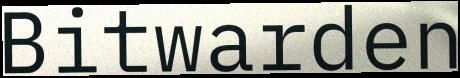
Bitwarden